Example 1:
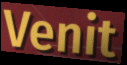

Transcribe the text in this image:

Venit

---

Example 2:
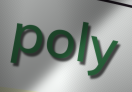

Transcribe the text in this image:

poly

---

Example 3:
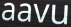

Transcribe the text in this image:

aavu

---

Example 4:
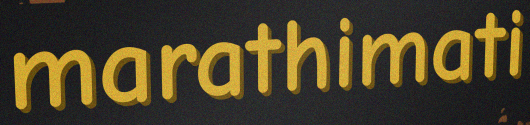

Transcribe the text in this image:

marathimati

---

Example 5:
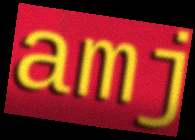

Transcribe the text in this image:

amj